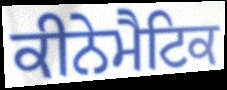
ਕੀਨੇਮੈਟਿਕ